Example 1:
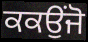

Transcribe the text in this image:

ਕਕਉਂਜੋ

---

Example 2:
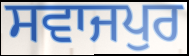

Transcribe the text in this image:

ਸਵਾਜਪੁਰ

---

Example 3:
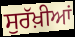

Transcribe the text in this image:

ਸੁਰੱਖ਼ੀਆਂ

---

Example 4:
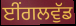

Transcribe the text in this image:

ਈਂਗਲਵੁੱਡ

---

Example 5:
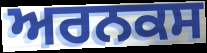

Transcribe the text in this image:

ਅਰਨਕਸ